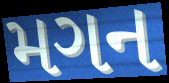
મગન